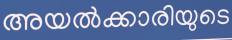
അയൽക്കാരിയുടെ